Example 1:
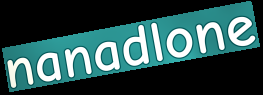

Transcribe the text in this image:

nanadlone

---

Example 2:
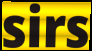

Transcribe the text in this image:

sirs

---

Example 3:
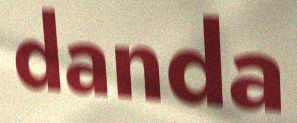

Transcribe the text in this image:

danda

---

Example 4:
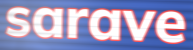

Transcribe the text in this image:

sarave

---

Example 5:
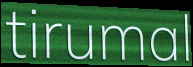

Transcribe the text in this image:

tirumal